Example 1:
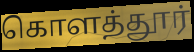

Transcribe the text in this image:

கொளத்தூர்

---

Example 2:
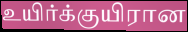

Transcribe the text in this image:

உயிர்க்குயிரான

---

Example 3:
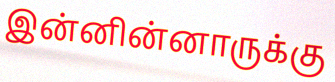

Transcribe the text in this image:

இன்னின்னாருக்கு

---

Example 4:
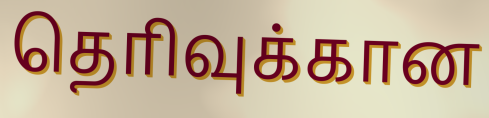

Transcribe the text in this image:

தெரிவுக்கான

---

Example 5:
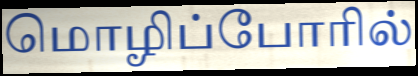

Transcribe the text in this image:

மொழிப்போரில்